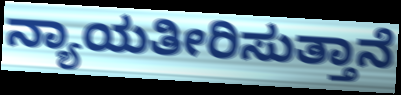
ನ್ಯಾಯತೀರಿಸುತ್ತಾನೆ